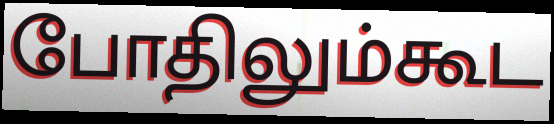
போதிலும்கூட